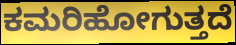
ಕಮರಿಹೋಗುತ್ತದೆ